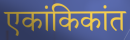
एकांकिकांत